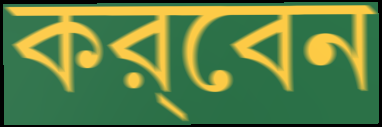
কর্‌বেন